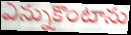
ఎన్నుకొంటాను